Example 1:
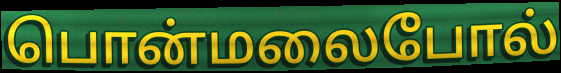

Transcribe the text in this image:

பொன்மலைபோல்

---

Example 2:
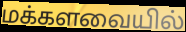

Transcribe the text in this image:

மக்களவையில்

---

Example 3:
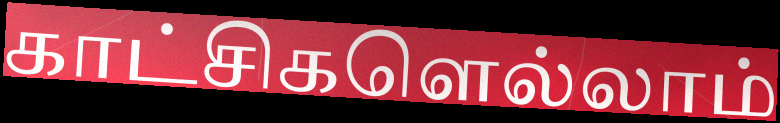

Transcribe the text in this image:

காட்சிகளெல்லாம்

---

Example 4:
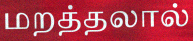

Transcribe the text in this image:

மறத்தலால்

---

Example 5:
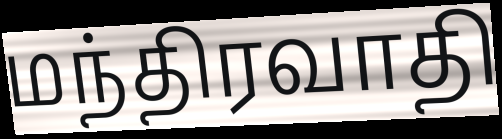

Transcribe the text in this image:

மந்திரவாதி